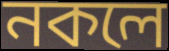
নকলে